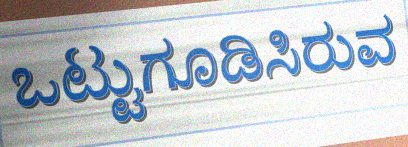
ಒಟ್ಟುಗೂಡಿಸಿರುವ